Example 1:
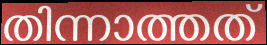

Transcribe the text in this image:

തിന്നാത്തത്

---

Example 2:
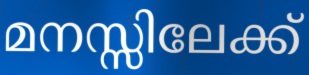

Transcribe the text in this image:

മനസ്സിലേക്ക്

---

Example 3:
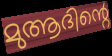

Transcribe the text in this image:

മുആദിന്റെ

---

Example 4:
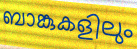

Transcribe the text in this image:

ബാങ്കുകളിലും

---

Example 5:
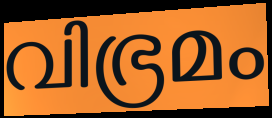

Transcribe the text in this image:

വിഭ്രമം